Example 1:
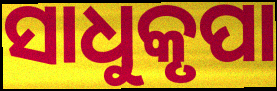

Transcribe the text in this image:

ସାଧୁକୃପା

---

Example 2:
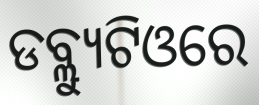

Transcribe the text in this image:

ଡବ୍ଲ୍ୟୁଟିଓରେ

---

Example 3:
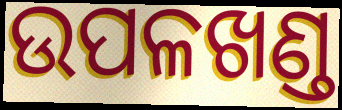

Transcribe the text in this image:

ଉପଳଖଣ୍ଡ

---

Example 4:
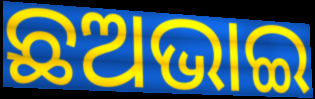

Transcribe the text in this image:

ଛଅଭାଇ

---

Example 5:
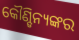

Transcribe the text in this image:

କୌଣ୍ଡିନ୍ୟଙ୍କର